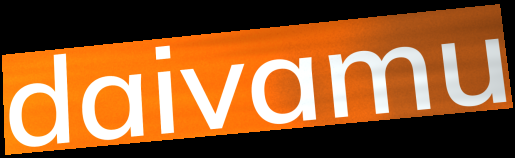
daivamu